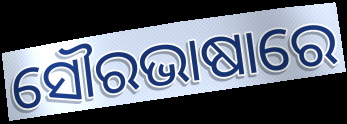
ସୌରଭାଷାରେ